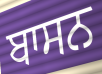
ਬਾਸਨ